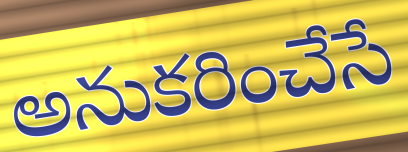
అనుకరించేసే